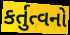
કર્તુત્વનો